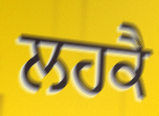
ਲਹਕੈ